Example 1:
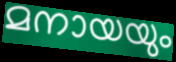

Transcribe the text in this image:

മനായയും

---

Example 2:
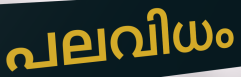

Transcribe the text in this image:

പലവിധം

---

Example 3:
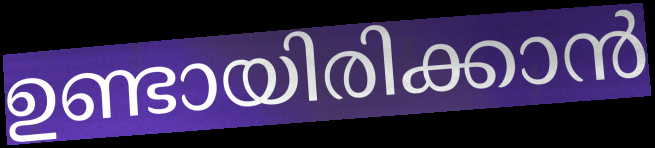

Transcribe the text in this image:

ഉണ്ടായിരിക്കാൻ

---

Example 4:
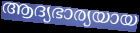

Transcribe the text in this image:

ആദ്യഭാര്യയായ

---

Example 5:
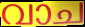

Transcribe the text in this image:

വാച